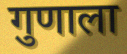
गुणाला